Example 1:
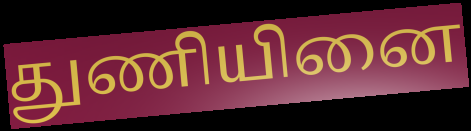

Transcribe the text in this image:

துணியினை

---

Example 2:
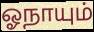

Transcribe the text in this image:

ஓநாயும்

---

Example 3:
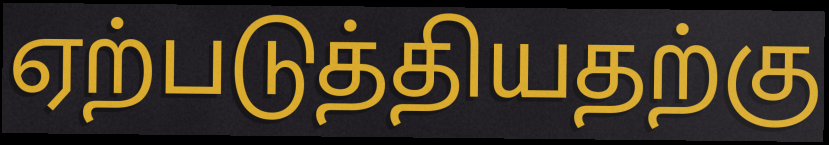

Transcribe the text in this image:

ஏற்படுத்தியதற்கு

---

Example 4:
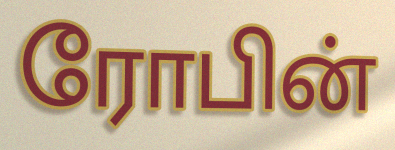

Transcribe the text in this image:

ரோபின்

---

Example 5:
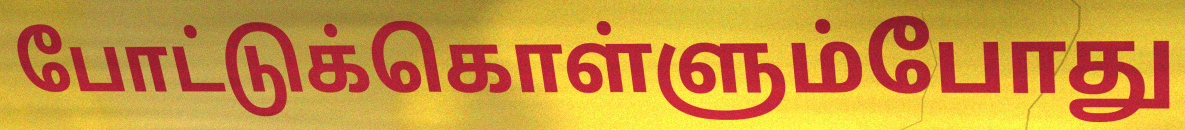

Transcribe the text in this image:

போட்டுக்கொள்ளும்போது